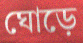
ঘোড়ে